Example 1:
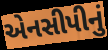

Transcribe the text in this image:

એનસીપીનું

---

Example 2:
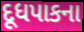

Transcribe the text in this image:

દૂધપાકના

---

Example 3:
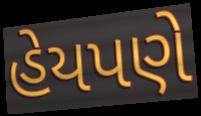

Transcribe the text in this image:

હેયપણે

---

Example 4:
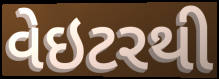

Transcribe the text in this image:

વેઇટરથી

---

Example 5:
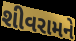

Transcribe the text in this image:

શીવરામને